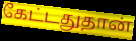
கேட்டதுதான்